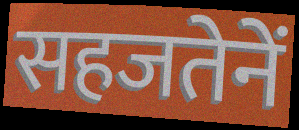
सहजतेनें